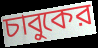
চাবুকের